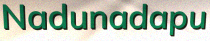
Nadunadapu